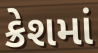
ક્રેશમાં